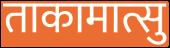
ताकामात्सु